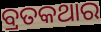
ବ୍ରତକଥାର